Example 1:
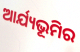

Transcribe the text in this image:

ଆର୍ଯ୍ୟଭୂମିର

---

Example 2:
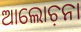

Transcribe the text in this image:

ଆଲୋଚ଼ନା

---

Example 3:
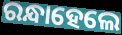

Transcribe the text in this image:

ରନ୍ଧାହେଲେ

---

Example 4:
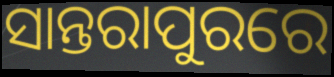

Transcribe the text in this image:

ସାନ୍ତରାପୁରରେ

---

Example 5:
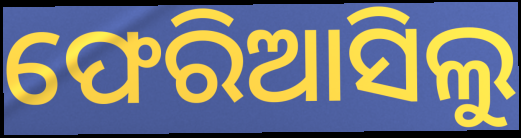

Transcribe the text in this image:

ଫେରିଆସିଲୁ